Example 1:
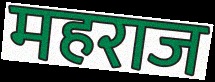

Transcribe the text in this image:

महराज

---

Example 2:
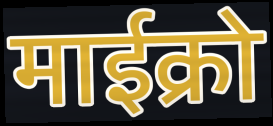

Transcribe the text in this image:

माईक्रो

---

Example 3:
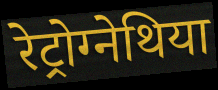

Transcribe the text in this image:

रेट्रोग्नेथिया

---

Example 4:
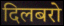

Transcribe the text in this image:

दिलबरो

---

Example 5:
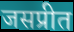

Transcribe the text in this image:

जसप्रीत